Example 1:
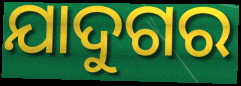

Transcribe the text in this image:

ଯାଦୁଗର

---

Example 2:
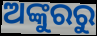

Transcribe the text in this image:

ଅଙ୍କୁରରୁ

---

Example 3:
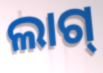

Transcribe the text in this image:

ଲାଗ୍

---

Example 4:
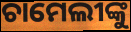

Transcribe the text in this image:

ଚାମେଲୀଙ୍କୁ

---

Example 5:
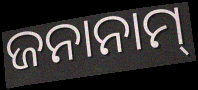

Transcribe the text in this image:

ଜନାନାମ୍